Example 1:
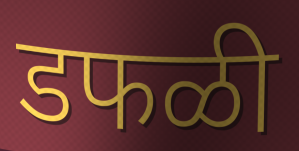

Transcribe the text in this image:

डफळी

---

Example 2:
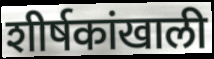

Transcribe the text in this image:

शीर्षकांखाली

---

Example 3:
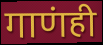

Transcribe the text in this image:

गाणंही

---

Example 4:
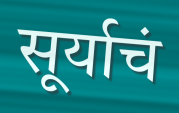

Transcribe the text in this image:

सूर्याचं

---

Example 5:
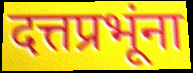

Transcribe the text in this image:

दत्तप्रभूंना